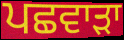
ਪਛਵਾੜਾ